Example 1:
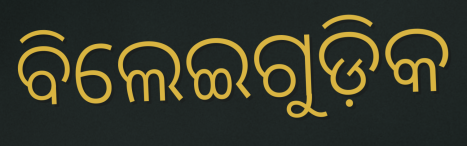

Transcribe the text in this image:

ବିଲେଇଗୁଡ଼ିକ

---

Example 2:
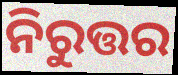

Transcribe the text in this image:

ନିରୁତ୍ତର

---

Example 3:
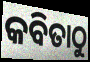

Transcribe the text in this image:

କବିତାଠୁ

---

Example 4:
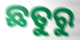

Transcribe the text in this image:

ଛତୁରୁ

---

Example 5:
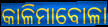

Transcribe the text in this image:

କାଳିମାବୋଳା